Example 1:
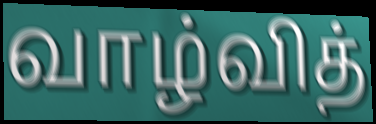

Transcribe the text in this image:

வாழ்வித்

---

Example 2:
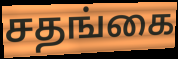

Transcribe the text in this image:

சதங்கை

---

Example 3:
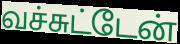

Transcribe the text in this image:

வச்சுட்டேன்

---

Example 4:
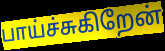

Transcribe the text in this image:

பாய்ச்சுகிறேன்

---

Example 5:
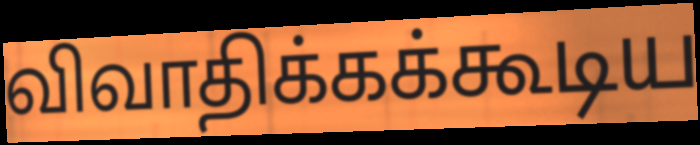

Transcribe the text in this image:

விவாதிக்கக்கூடிய